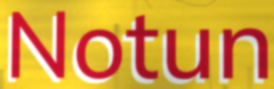
Notun